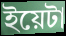
ইয়েটা